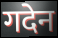
गदेन